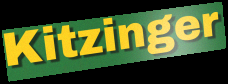
Kitzinger